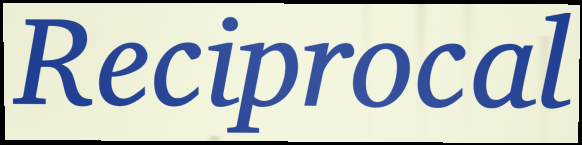
Reciprocal